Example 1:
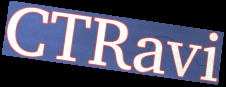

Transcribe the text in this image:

CTRavi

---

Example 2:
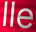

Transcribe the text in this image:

lle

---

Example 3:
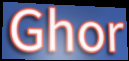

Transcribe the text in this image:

Ghor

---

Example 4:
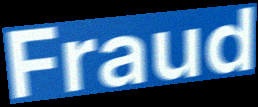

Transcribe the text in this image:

Fraud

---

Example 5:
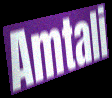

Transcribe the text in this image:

Amtali